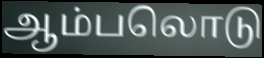
ஆம்பலொடு